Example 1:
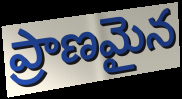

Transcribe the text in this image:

ప్రాణమైన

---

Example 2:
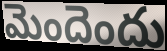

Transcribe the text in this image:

మెందెందు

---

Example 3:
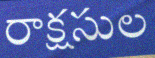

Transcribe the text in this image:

రాక్షసుల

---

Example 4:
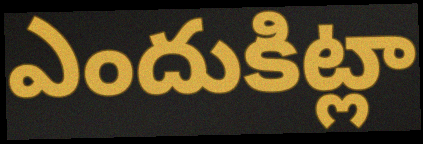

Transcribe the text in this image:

ఎందుకిట్లా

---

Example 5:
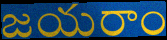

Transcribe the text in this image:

జయరాం